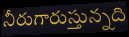
నీరుగారుస్తున్నది